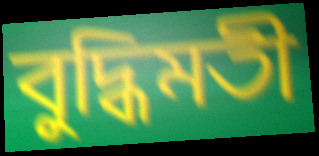
বুদ্ধিমতী